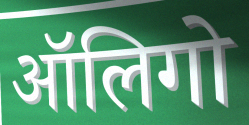
ऑलिगो